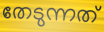
തേടുന്നത്